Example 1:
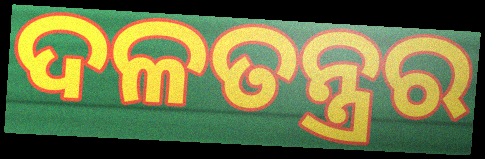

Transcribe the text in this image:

ଦଳତନ୍ତ୍ରର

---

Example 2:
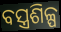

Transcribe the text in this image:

ବସ୍ତ୍ରଶିଳ୍ପ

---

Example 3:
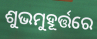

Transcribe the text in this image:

ଶୁଭମୁହୂର୍ତ୍ତରେ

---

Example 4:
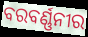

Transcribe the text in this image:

ବରବର୍ଣ୍ଣନୀର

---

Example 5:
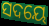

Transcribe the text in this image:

ସଦୟେ